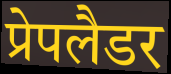
प्रेपलैडर